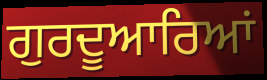
ਗੁਰਦੂਆਰਿਆਂ